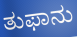
ತುಫಾನು